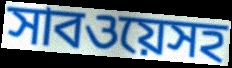
সাবওয়েসহ